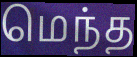
மெந்த